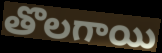
తొలగాయి